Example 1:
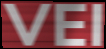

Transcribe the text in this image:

VEI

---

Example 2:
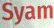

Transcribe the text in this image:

Syam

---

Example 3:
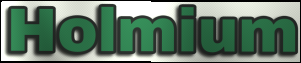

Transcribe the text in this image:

Holmium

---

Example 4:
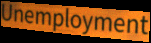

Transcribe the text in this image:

Unemployment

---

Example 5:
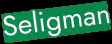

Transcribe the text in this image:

Seligman